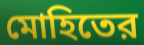
মোহিতের